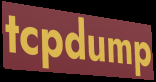
tcpdump